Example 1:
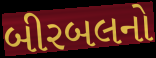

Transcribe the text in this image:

બીરબલનો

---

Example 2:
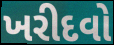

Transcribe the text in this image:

ખરીદવો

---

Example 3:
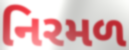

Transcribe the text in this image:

નિરમળ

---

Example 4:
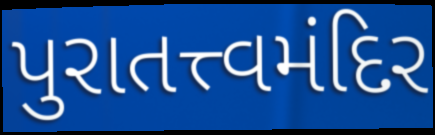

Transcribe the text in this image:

પુરાતત્ત્વમંદિર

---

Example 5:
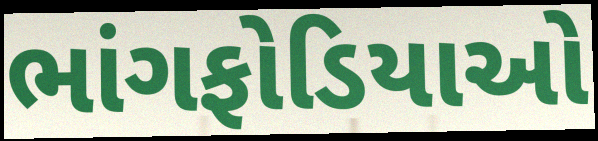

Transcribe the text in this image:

ભાંગફોડિયાઓ